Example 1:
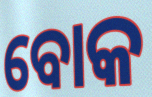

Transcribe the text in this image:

ବୋକ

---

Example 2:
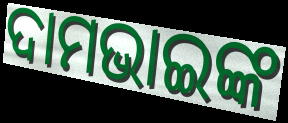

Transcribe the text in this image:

ଦାମଭାଇଙ୍କ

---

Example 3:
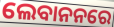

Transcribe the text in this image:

ଲେବାନନରେ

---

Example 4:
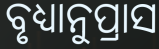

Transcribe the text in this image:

ବୃଧ୍ୟାନୁପ୍ରାସ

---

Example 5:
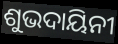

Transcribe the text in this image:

ଶୁଭଦାୟିନୀ